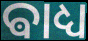
ଵାଧ୍ୟ